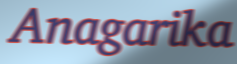
Anagarika